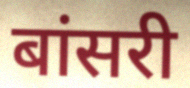
बांसरी